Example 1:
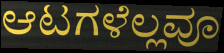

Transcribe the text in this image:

ಆಟಗಳೆಲ್ಲವೂ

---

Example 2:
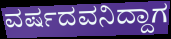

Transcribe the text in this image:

ವರ್ಷದವನಿದ್ದಾಗ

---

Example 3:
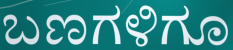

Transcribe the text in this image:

ಬಣಗಳಿಗೂ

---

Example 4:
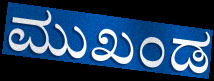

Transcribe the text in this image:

ಮುಖಂಡ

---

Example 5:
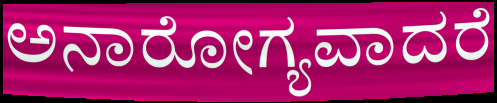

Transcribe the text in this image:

ಅನಾರೋಗ್ಯವಾದರೆ